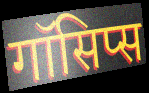
गॉसिप्स